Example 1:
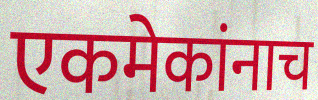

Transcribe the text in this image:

एकमेकांनाच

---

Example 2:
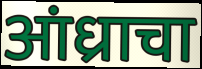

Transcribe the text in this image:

आंध्राचा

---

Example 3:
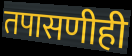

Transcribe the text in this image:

तपासणीही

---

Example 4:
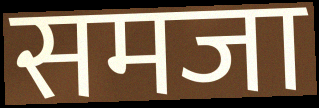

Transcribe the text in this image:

समजा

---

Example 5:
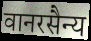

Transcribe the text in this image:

वानरसैन्य